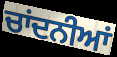
ਚਾਂਦਨੀਆਂ